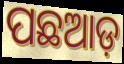
ପଛଆଡ଼